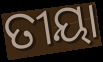
ତୀୟା